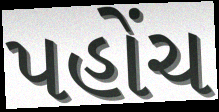
પહોંચ